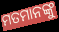
ମତମାନଙ୍କୁ